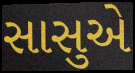
સાસુએ